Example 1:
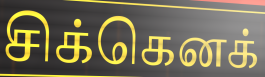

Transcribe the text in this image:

சிக்கெனக்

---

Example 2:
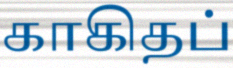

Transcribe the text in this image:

காகிதப்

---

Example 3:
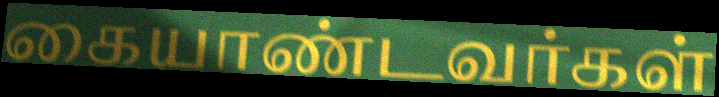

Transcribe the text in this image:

கையாண்டவர்கள்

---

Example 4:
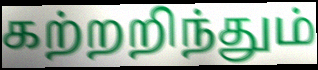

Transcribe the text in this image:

கற்றறிந்தும்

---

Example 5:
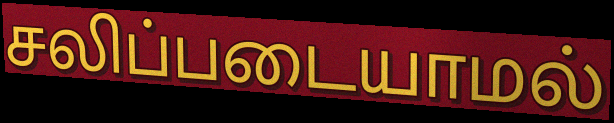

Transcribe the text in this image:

சலிப்படையாமல்